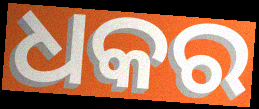
ଧକର